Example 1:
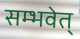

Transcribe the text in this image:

सम्भवेत्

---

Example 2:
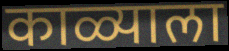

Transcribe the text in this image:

काळ्याला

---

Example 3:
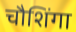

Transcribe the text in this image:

चौशिंगा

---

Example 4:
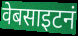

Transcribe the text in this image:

वेबसाइटनं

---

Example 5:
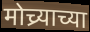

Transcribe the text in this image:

मोच्र्याच्या